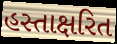
હસ્તાક્ષરિત